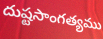
దుష్టసాంగత్యము